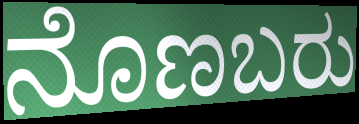
ನೊಣಬರು